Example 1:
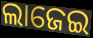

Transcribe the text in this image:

ଲାଜେଇ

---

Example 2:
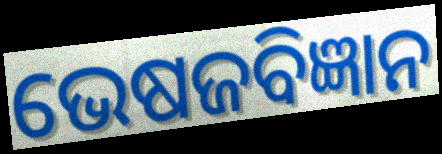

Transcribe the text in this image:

ଭେଷଜବିଜ୍ଞାନ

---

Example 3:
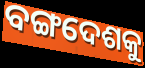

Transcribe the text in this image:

ବଙ୍ଗଦେଶକୁ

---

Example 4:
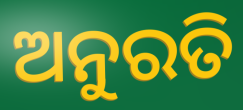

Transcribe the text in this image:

ଅନୁରତି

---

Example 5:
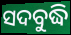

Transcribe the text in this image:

ସଦବୁଦ୍ଧି